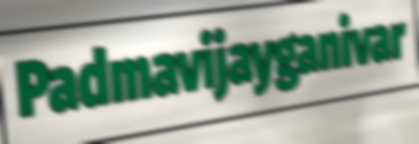
Padmavijayganivar